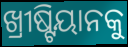
ଖ୍ରୀଷ୍ଟିୟାନକୁ